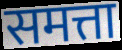
समत्ता